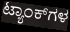
ಟ್ಯಾಂಕ್‌ಗಳ